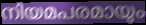
നിയമപരമായും